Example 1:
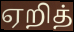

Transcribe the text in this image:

ஏறித்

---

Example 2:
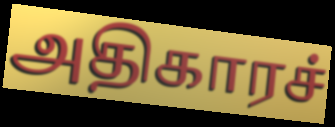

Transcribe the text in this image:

அதிகாரச்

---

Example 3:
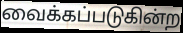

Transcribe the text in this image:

வைக்கப்படுகின்ற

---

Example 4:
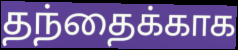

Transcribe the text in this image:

தந்தைக்காக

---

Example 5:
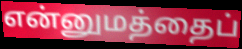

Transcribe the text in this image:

என்னுமத்தைப்